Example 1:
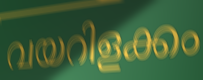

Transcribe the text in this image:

വയറിളക്കം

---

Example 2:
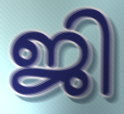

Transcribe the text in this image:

ജി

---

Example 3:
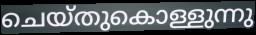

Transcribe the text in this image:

ചെയ്തുകൊള്ളുന്നു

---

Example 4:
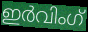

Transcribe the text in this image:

ഇർവിംഗ്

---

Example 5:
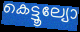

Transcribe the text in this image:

കെട്ടൂല്യോ